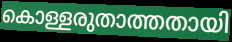
കൊള്ളരുതാത്തതായി